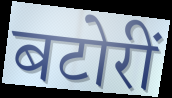
बटोरीं